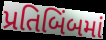
પ્રતિબિંબમાં